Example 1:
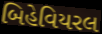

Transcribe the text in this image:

બિહેવિયરલ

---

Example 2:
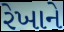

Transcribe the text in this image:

રેખાને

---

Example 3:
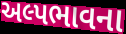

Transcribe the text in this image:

અલ્પભાવના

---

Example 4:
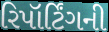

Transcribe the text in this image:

રિપૉર્ટિંગની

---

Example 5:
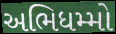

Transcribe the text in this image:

અભિધમ્મો